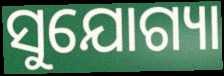
ସୁଯୋଗ୍ୟା